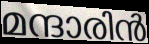
മന്ദാരിൻ